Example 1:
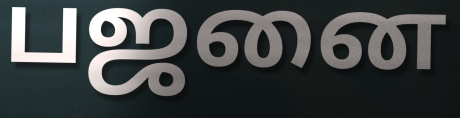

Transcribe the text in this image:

பஜனை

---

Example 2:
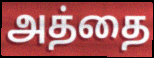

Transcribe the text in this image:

அத்தை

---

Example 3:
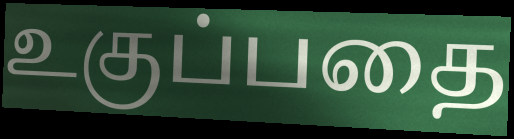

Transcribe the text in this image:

உகுப்பதை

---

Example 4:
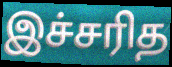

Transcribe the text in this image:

இச்சரித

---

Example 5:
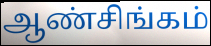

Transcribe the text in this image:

ஆண்சிங்கம்